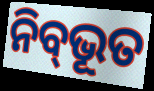
ନିବ୍‌ଭୂତ